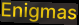
Enigmas